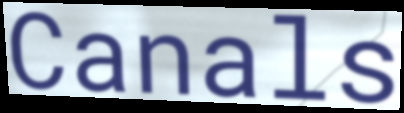
Canals